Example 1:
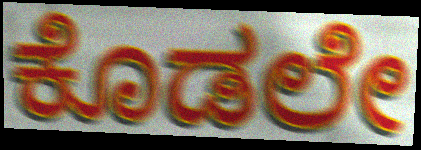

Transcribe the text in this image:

ಕೊಡಲೇ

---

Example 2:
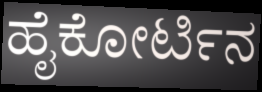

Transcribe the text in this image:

ಹೈಕೋರ್ಟಿನ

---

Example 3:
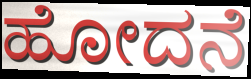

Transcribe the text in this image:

ಹೋದನೆ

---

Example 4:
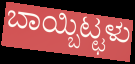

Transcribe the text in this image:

ಬಾಯ್ಬಿಟ್ಟಳು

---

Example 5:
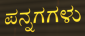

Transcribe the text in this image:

ಪನ್ನಗಗಳು